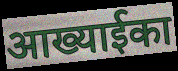
आख्याईका